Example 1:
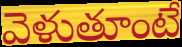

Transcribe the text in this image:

వెళుతూంటే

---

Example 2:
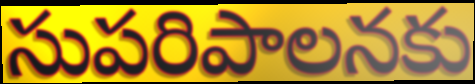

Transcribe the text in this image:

సుపరిపాలనకు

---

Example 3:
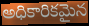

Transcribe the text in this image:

అధికారికమైన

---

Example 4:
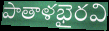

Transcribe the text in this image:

పాతాళభైరవి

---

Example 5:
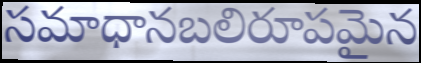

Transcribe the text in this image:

సమాధానబలిరూపమైన